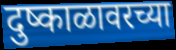
दुष्काळावरच्या